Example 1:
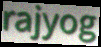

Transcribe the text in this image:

rajyog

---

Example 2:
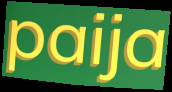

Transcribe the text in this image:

paija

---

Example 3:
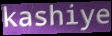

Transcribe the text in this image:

kashiye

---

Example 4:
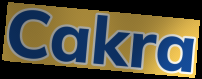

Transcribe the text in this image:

Cakra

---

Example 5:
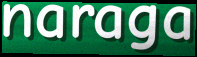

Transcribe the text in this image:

naraga